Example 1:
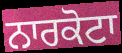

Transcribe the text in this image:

ਨਾਰਕੋਟਾ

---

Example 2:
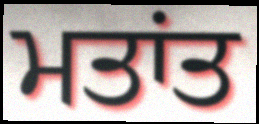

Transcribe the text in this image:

ਮਤਾਂਤ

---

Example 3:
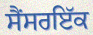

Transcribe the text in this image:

ਸੈਂਸਰਇੱਕ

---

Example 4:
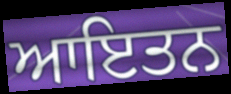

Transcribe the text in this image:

ਆਇਤਨ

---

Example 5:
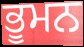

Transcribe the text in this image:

ਭੂਮਨ